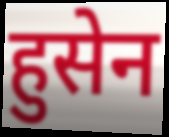
हुसेन